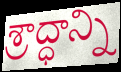
శ్రాద్ధాన్ని